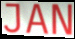
JAN